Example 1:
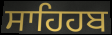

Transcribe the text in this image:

ਸਾਹਿਹਬ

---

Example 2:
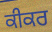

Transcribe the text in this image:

ਕੀਕਰ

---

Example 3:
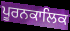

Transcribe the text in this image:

ਪੂਰਨਕਾਲਿਕ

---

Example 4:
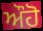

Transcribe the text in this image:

ਔਹੋ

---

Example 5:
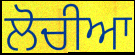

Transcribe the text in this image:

ਲੋਚੀਆ